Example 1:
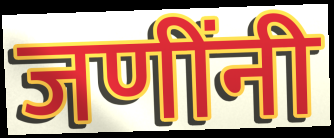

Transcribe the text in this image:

जणींनी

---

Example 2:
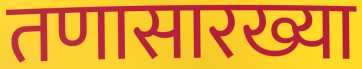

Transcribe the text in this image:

तणासारख्या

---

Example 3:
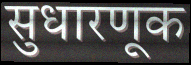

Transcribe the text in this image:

सुधारणूक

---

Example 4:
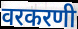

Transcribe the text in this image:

वरकरणी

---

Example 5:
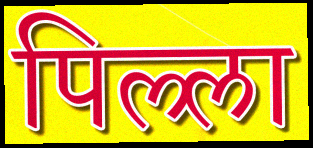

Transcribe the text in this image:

पिल्ला